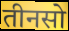
तीनसो